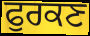
ਫੁਰਕਣ